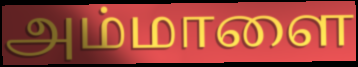
அம்மாளை